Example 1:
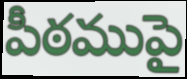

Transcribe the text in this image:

పీఠముపై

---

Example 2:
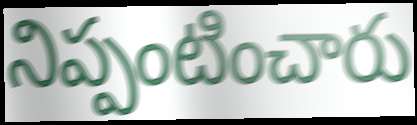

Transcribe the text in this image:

నిప్పంటించారు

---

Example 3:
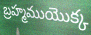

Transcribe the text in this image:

బ్రహ్మముయొక్క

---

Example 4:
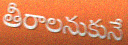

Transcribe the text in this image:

తీరాలనుకునే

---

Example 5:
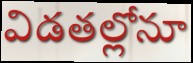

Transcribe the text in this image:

విడతల్లోనూ